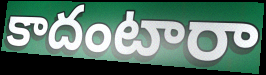
కాదంటారా